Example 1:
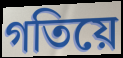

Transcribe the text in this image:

গতিয়ে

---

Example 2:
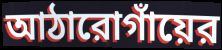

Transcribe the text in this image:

আঠারোগাঁয়ের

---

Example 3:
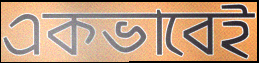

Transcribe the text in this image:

একভাবেই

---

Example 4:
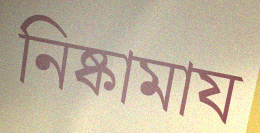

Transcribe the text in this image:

নিষ্কামায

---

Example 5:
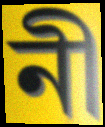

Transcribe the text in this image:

নী